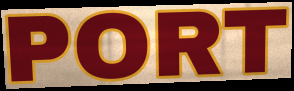
PORT